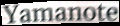
Yamanote